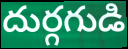
దుర్గగుడి